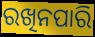
ରଖିନପାରି